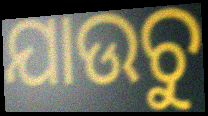
ଯାଉଚୁ